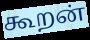
கூறன்